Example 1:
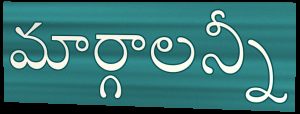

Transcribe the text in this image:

మార్గాలన్నీ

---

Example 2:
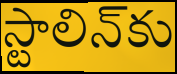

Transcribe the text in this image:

స్టాలిన్‌కు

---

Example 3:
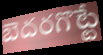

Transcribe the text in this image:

బెదరగొట్టే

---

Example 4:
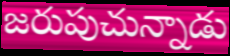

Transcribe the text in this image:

జరుపుచున్నాడు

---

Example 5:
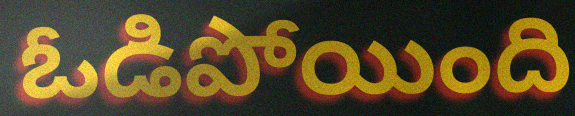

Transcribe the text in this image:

ఓడిపోయింది